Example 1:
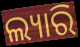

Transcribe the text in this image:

ଲ୍ୟାରି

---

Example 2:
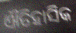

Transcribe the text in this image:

ଐତିହାସିକ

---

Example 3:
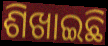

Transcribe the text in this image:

ଶିଖାଇଛି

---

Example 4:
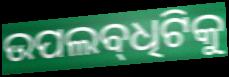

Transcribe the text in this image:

ଉପଲବ୍‌ଧିଟିକୁ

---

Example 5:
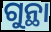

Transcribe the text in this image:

ଗୁନ୍ଥା